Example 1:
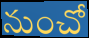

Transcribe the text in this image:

నుంచో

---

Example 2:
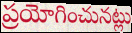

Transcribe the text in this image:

ప్రయోగించునట్లు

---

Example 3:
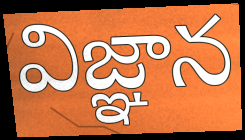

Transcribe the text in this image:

విజ్ఞాన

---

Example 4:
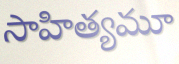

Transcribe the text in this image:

సాహిత్యమూ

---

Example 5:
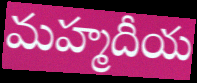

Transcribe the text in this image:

మహ్మదీయ